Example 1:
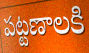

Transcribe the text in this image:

పట్టణాలకి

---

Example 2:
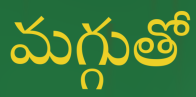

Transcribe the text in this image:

మగ్గుతో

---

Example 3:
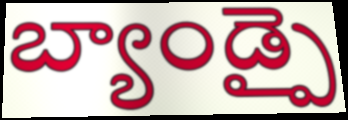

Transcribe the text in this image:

బ్యాండ్పై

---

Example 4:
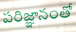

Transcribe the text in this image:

పరిజ్ఞానంతో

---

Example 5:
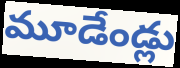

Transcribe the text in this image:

మూడేండ్లు